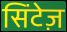
सिंटेज़